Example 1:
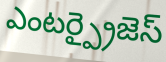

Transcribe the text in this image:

ఎంటర్ప్రైజెస్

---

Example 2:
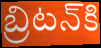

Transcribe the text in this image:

బ్రిటన్‌కి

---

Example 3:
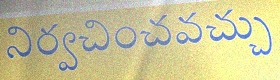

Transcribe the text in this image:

నిర్వచించవచ్చు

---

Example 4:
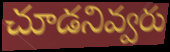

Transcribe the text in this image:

చూడనివ్వరు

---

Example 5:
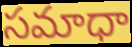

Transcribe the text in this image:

సమాధా